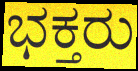
ಭಕ್ತರು